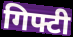
गिफ्टी